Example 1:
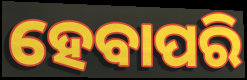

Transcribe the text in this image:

ହେବାପରି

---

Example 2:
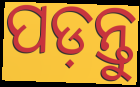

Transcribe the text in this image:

ପଡ଼ନ୍ତୁ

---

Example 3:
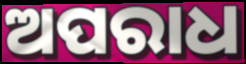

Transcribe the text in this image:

ଅପରାଧ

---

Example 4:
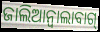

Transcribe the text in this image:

ଜାଲିଆନ୍ଵାଲାବାଗ୍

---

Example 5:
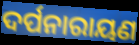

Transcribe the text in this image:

ଦର୍ପନାରାୟଣ